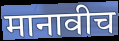
मानावीच